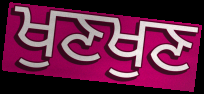
ਖੁਣਖੁਣ